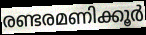
രണ്ടരമണിക്കൂർ